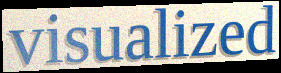
visualized